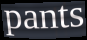
pants